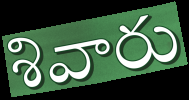
శివారు